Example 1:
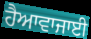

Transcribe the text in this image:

ਹੈਆਵਾਜਾਈ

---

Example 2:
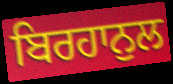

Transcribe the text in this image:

ਬਿਰਹਾਨੁਲ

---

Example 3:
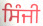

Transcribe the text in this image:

ਸਿੰਜੀ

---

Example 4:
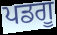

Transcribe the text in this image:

ਪਡਗੂ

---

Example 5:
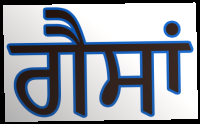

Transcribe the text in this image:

ਗੈਸਾਂ